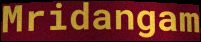
Mridangam